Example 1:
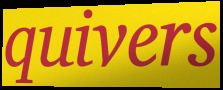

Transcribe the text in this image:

quivers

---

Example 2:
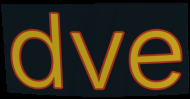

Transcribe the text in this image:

dve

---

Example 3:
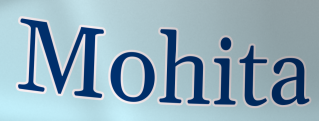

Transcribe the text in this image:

Mohita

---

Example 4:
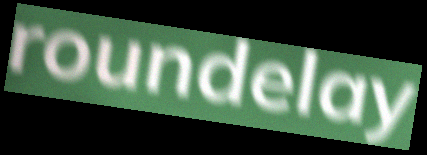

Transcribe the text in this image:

roundelay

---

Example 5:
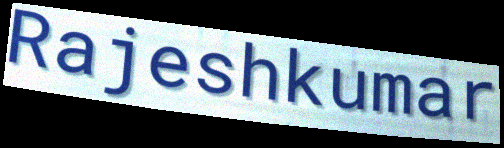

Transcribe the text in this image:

Rajeshkumar